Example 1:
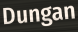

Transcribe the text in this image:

Dungan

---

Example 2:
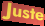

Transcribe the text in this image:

Juste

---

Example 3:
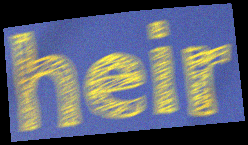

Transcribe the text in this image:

heir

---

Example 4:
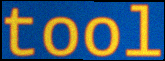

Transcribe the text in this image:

tool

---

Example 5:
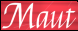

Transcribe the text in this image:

Maut